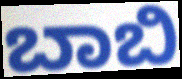
ಬಾಬಿ